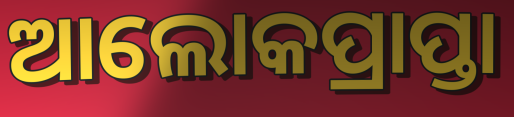
ଆଲୋକପ୍ରାପ୍ତା